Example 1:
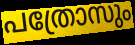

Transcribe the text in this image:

പത്രോസും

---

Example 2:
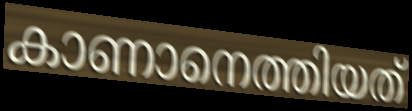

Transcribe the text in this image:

കാണാനെത്തിയത്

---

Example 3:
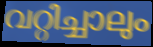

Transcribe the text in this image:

വറ്റിച്ചാലും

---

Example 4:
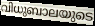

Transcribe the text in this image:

വിധുബാലയുടെ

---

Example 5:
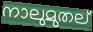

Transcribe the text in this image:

നാലുമുതല്